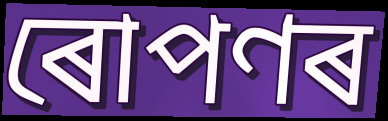
ৰোপণৰ